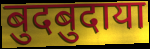
बुदबुदाया